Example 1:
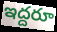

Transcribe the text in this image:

ఇద్దరూ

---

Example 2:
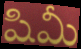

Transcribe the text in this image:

షిమీ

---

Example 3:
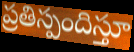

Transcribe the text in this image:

ప్రతిస్పందిస్తూ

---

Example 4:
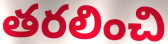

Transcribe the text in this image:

తరలించి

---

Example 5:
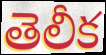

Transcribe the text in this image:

తెలీక